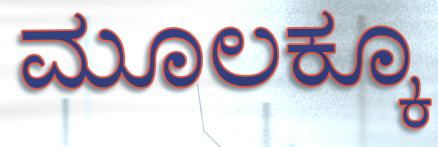
ಮೂಲಕ್ಕೂ